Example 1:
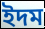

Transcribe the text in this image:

ইদম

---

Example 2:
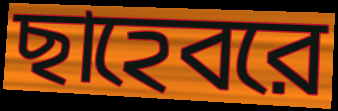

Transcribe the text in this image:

ছাহেবরে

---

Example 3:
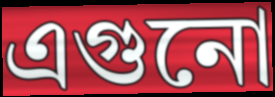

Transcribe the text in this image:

এগুনো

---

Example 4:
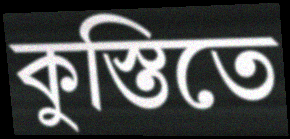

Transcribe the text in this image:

কুস্তিতে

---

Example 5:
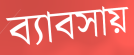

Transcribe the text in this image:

ব্যাবসায়